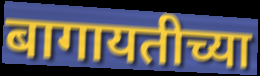
बागायतीच्या